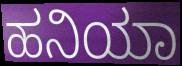
ಹನಿಯಾ